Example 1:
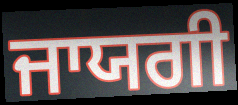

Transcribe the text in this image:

ਜਾਯਗੀ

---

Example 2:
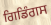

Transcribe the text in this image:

ਗਿਡਿੰਗਸ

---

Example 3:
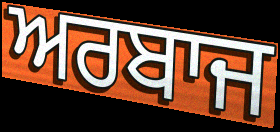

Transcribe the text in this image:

ਅਰਬਾਜ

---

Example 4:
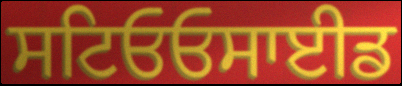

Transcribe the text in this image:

ਸਟਿਓਓਸਾਈਡ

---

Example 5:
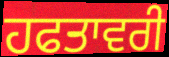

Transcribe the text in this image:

ਹਫਤਾਵਰੀ